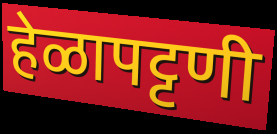
हेळापट्टणी